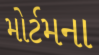
મોર્ટમના